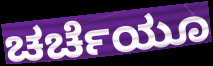
ಚರ್ಚೆಯೂ